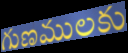
గుణములకు